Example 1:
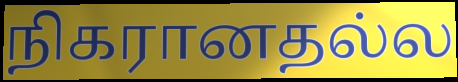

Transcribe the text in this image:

நிகரானதல்ல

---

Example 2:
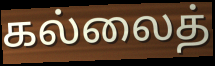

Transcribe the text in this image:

கல்லைத்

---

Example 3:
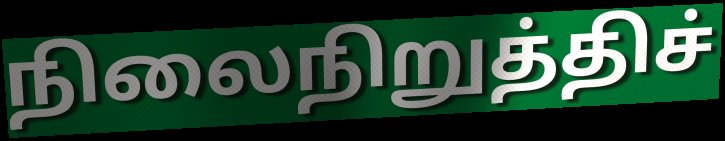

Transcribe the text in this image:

நிலைநிறுத்திச்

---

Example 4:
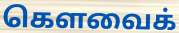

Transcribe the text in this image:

கௌவைக்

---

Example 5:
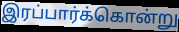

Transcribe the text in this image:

இரப்பார்க்கொன்று